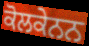
ਕੋਲਕੇਨਨ